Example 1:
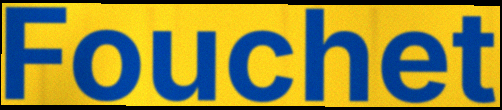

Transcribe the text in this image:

Fouchet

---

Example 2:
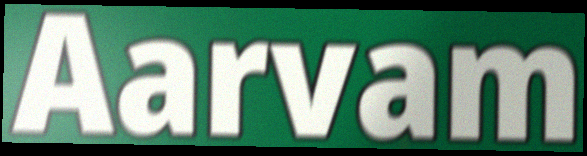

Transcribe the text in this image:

Aarvam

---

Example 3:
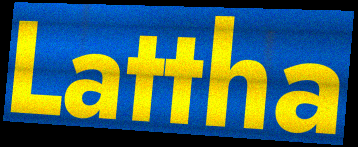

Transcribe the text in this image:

Lattha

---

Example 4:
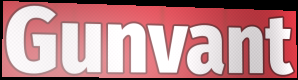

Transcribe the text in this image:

Gunvant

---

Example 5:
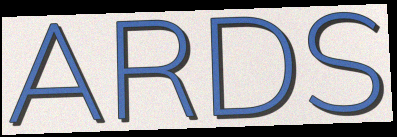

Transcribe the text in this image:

ARDS